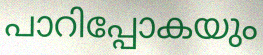
പാറിപ്പോകയും